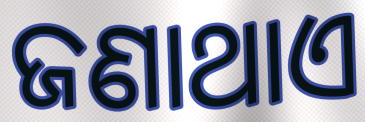
ଜଣାଥାଏ